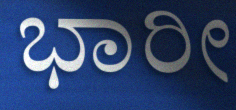
ಭಾರೀ